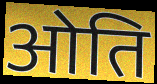
ओति